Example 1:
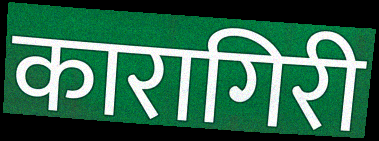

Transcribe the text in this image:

कारागिरी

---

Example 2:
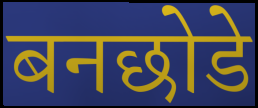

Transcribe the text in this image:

बनछोडे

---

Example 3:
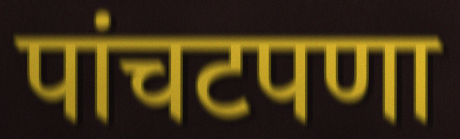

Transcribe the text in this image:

पांचटपणा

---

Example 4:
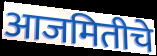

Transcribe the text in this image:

आजमितीचे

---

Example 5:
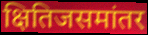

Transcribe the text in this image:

क्षितिजसमांतर